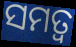
ସମତ୍ଵ